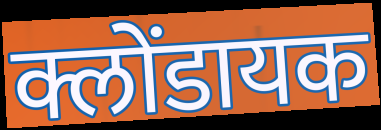
क्लोंडायक